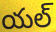
యల్